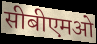
सीबीएमओ